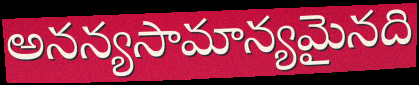
అనన్యసామాన్యమైనది